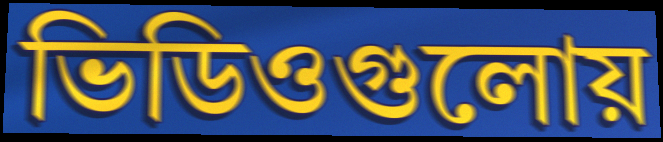
ভিডিওগুলোয়